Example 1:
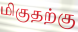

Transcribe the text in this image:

மிகுதற்கு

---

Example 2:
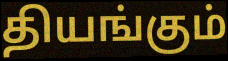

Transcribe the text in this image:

தியங்கும்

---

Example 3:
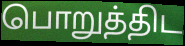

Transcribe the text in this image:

பொறுத்திட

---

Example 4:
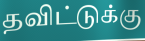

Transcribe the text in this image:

தவிட்டுக்கு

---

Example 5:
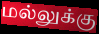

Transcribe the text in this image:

மல்லுக்கு